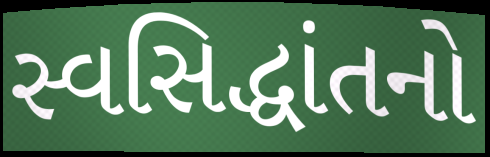
સ્વસિદ્ધાંતનો